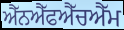
ਐੱਨਐੱਫਐੱਚਐੱਮ